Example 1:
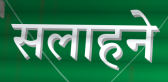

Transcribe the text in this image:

सलाहने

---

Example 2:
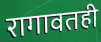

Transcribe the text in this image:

रागावतही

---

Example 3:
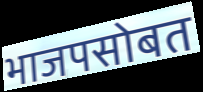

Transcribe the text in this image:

भाजपसोबत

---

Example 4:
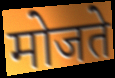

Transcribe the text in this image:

मोजते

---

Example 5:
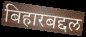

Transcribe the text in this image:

बिहारबद्दल